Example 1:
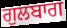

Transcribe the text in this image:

ਗੁਲਬਾਗ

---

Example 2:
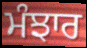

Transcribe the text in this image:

ਮੰਝਾਰ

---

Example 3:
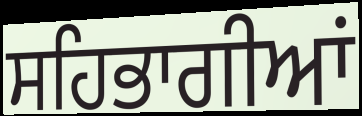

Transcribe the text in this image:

ਸਹਿਭਾਗੀਆਂ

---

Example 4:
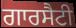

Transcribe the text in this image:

ਗਾਰਸੈਟੀ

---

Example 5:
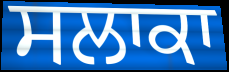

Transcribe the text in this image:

ਸਲਾਕਾ